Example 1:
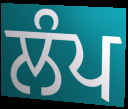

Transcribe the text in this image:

ਲੰਪ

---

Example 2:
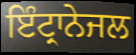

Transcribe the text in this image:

ਇੰਟ੍ਰਾਨੇਜਲ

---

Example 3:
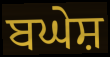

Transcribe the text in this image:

ਬਘੇਸ਼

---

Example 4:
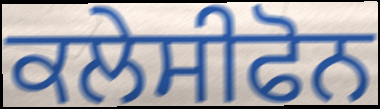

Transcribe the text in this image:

ਕਲੇਸੀਫੋਨ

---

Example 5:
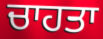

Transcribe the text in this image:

ਚਾਹਤਾ